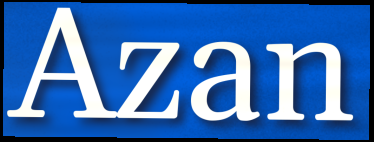
Azan